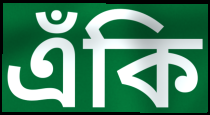
এঁকি